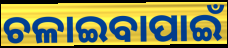
ଚଳାଇବାପାଇଁ